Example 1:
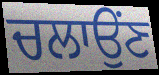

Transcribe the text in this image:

ਚਲਾਉਂਣ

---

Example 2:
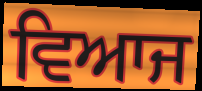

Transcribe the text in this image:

ਵਿਆਜ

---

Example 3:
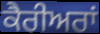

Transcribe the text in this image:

ਕੈਰੀਅਰਾਂ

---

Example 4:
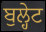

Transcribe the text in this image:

ਬੁਲ੍ਹੇਟ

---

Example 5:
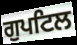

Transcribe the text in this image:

ਗੁਪਟਿਲ